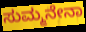
ಸುಮ್ಮನೇನಾ